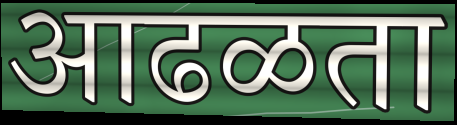
आढळता